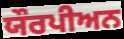
ਯੌਰਪੀਅਨ